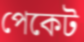
পেকেট